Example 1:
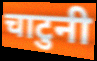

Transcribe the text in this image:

चाटुनी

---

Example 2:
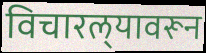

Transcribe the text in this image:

विचारल्यावरून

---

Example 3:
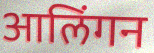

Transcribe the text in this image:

आलिंगन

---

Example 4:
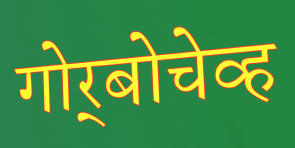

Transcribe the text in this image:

गोर्बोचेव्ह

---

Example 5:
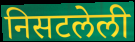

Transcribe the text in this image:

निसटलेली